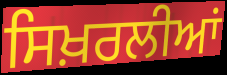
ਸਿਖ਼ਰਲੀਆਂ